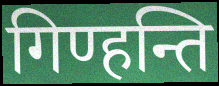
गिण्हन्ति